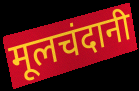
मूलचंदानी